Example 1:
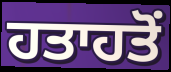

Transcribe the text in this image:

ਹਤਾਹਤੋਂ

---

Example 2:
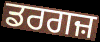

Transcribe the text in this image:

ਡਰਗਜ਼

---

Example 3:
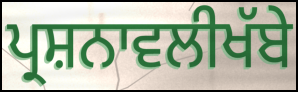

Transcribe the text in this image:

ਪ੍ਰਸ਼ਨਾਵਲੀਖੱਬੇ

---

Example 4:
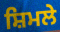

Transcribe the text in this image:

ਸ਼ਿਮਲੇ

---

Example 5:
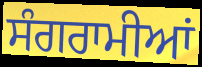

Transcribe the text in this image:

ਸੰਗਰਾਮੀਆਂ